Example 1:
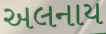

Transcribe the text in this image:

અલનાય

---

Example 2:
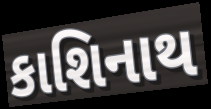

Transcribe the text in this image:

કાશિનાથ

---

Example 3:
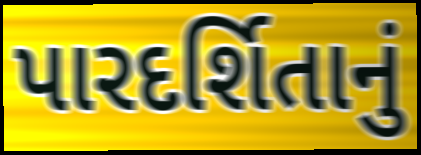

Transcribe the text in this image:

પારદર્શિતાનું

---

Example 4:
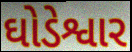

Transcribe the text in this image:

ઘોડેશ્વાર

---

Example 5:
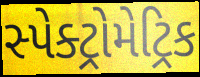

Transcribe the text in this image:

સ્પેક્ટ્રોમેટ્રિક